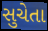
સુચેતા